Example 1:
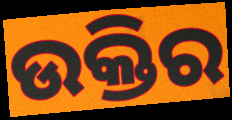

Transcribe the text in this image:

ଉକ୍ତିର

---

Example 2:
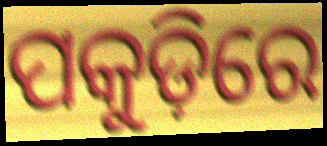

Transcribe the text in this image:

ପକୁଡ଼ିରେ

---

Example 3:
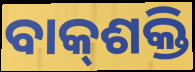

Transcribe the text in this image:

ବାକ୍‍ଶକ୍ତି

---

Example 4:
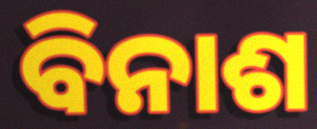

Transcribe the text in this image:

ବିନାଶ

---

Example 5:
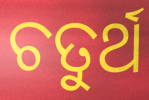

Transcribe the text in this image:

ଚତୁର୍ଥ